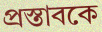
প্রস্তাবকে